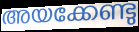
അയക്കേണ്ടു